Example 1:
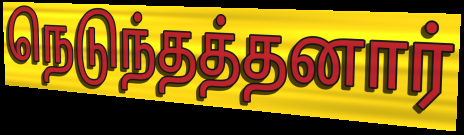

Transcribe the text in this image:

நெடுந்தத்தனார்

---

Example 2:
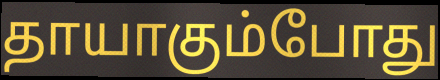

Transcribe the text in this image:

தாயாகும்போது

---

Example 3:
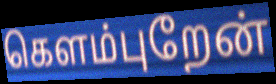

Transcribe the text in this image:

கெளம்புறேன்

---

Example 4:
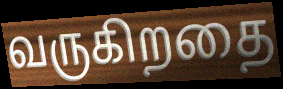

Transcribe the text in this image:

வருகிறதை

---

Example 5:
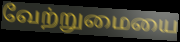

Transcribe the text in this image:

வேற்றுமையை